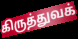
கிருத்துவக்